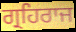
ਗ੍ਰਹਿਰਾਜ